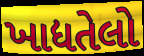
ખાદ્યતેલો